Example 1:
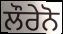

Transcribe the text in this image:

ਲੌਰੇਨੋ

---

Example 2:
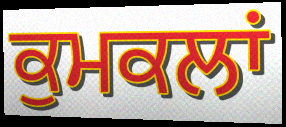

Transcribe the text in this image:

ਕੁਮਕਲਾਂ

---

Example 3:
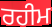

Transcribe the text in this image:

ਰਹੀਮ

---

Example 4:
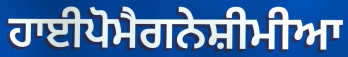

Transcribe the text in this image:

ਹਾਈਪੋਮੈਗਨੇਸ਼ੀਮੀਆ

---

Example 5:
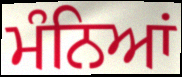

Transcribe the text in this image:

ਮੰਨਿਆਂ